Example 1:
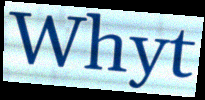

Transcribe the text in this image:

Whyt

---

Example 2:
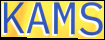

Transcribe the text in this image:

KAMS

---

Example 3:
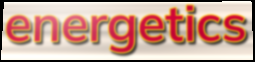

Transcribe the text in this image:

energetics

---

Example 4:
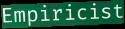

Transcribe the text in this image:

Empiricist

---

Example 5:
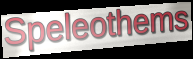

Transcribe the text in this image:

Speleothems